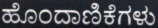
ಹೊಂದಾಣಿಕೆಗಳು